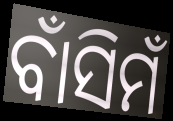
ବାଁସିମଁ